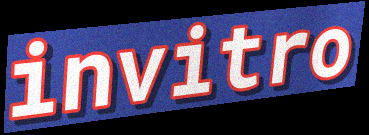
invitro